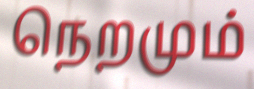
நெறமும்